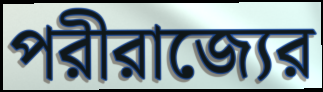
পরীরাজ্যের